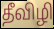
தீவிழி